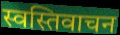
स्वस्तिवाचन